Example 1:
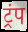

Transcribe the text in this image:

ट्रंप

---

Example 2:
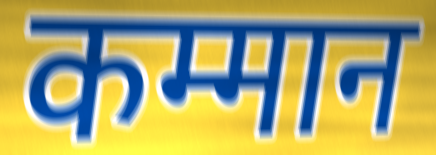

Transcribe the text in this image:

कम्मान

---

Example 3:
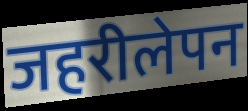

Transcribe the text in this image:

जहरीलेपन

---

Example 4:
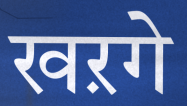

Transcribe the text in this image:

खऱगे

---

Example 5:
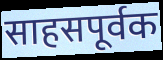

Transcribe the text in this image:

साहसपूर्वक